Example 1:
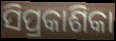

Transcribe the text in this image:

ସିପ୍ରକାଶିକା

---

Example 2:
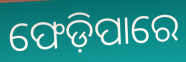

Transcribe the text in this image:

ଫେଡ଼ିପାରେ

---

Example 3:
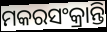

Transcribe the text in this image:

ମକରସଂକ୍ରାନ୍ତି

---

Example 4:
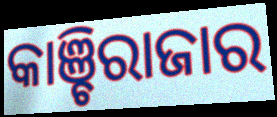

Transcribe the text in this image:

କାଞ୍ଚିରାଜାର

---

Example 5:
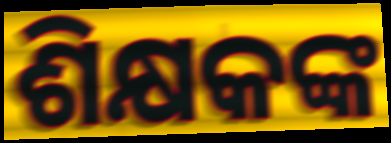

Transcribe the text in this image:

ଶିକ୍ଷକଙ୍କ